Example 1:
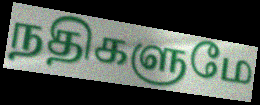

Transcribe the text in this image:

நதிகளுமே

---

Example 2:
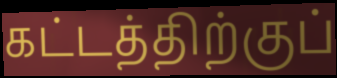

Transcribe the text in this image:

கட்டத்திற்குப்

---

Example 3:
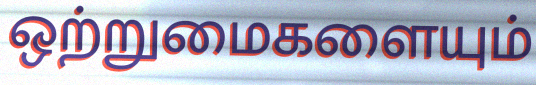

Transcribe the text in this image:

ஒற்றுமைகளையும்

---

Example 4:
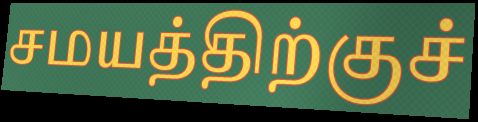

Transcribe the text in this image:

சமயத்திற்குச்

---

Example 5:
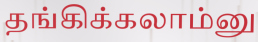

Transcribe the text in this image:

தங்கிக்கலாம்னு